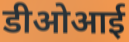
डीओआई